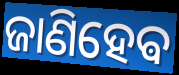
ଜାଣିହେଵ